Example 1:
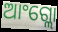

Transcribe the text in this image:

ଆଂଗ୍ଲୋ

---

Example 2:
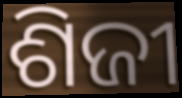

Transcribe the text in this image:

ଶିଜୀ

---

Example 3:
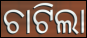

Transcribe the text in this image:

ଚାଟିଲା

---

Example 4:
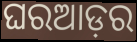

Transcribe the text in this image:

ଘରଆଡ଼ର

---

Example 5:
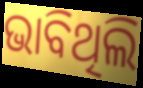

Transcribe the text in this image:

ଭାବିଥିଲି